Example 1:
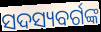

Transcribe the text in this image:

ସଦସ୍ୟବର୍ଗଙ୍କ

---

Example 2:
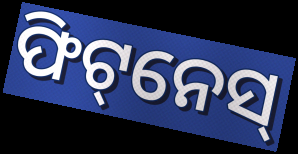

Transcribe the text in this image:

ଫିଟ୍‌ନେସ୍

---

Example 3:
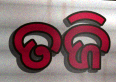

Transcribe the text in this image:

ତଜି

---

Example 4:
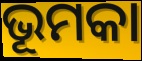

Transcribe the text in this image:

ଭୂମକା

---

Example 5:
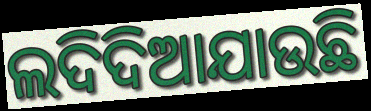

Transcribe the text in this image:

ଲଦିଦିଆଯାଉଛି